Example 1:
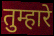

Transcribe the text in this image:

तुम्हारे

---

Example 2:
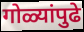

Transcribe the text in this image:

गोळ्यांपुढे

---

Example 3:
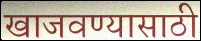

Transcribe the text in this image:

खाजवण्यासाठी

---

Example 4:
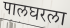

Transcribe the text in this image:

पालघरला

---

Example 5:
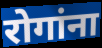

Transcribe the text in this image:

रोगांना